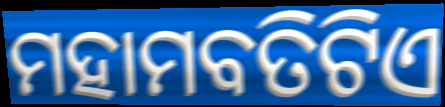
ମହାମବତିଟିଏ